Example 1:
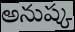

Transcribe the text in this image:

అనుష్క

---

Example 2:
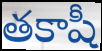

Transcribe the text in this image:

తకాషీ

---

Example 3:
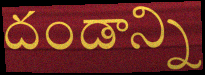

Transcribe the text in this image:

దండాన్ని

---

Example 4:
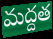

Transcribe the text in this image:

మద్దత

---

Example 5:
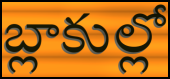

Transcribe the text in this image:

బ్లాకుల్లో